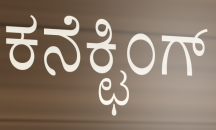
ಕನೆಕ್ಟಿಂಗ್